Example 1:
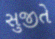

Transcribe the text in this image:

સુજીતે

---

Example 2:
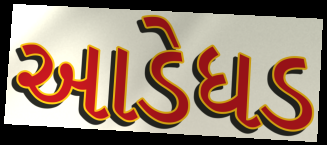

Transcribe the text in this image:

આડેધડ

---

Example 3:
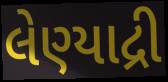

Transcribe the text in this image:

લેણ્યાદ્રી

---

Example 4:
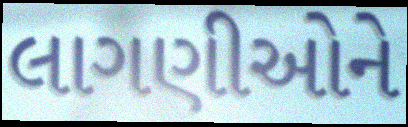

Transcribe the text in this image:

લાગણીઓને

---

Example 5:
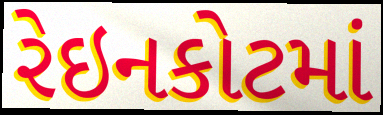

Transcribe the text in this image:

રેઇનકોટમાં